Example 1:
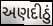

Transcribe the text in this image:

અણદીઠું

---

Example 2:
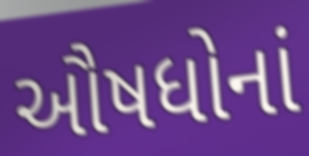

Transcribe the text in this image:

ઔષધોનાં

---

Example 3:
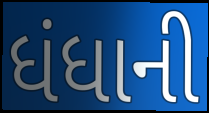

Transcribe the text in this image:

ધંધાની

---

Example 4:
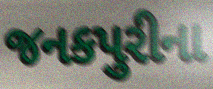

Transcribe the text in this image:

જનકપુરીના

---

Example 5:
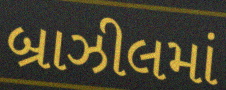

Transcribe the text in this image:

બ્રાઝીલમાં